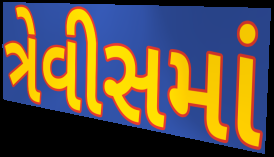
ત્રેવીસમાં